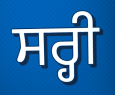
ਸਰ੍ਹੀ